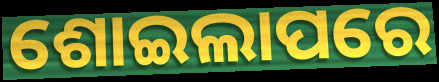
ଶୋଇଲାପରେ